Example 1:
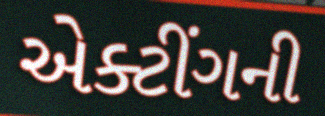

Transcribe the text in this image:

એક્ટીંગની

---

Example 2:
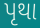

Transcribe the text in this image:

પૃથા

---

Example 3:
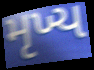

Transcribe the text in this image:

મૃખ્ય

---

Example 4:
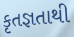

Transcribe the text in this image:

કૃતજ્ઞતાથી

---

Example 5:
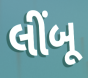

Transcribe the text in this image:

લીંબૂ